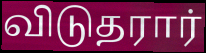
விடுதரார்